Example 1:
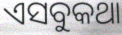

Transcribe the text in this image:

ଏସବୁକଥା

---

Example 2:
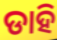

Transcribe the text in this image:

ଡାହି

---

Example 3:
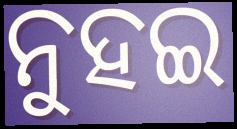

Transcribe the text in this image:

ନୁହଇ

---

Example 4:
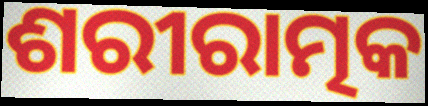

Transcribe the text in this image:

ଶରୀରାତ୍ମକ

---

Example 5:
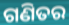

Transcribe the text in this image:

ଗଣିତର